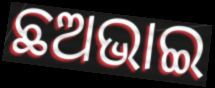
ଛଅଭାଇ